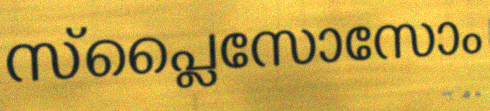
സ്പ്ലൈസോസോം